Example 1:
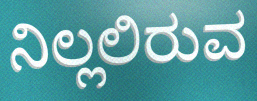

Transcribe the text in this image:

ನಿಲ್ಲಲಿರುವ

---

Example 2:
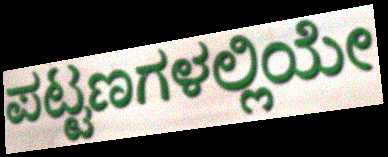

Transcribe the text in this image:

ಪಟ್ಟಣಗಳಲ್ಲಿಯೇ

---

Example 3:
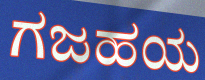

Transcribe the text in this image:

ಗಜಹಯ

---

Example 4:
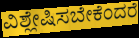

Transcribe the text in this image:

ವಿಶ್ಲೇಷಿಸಬೇಕೆಂದರೆ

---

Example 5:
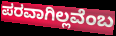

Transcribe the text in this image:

ಪರವಾಗಿಲ್ಲವೆಂಬ